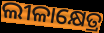
ଲୀଳାକ୍ଷେତ୍ର